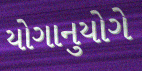
યોગાનુયોગે